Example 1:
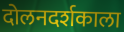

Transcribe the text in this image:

दोलनदर्शकाला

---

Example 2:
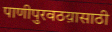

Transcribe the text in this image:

पाणीपुरवठय़ासाठी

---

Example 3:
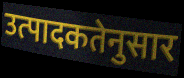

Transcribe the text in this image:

उत्पादकतेनुसार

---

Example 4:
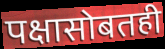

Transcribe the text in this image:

पक्षासोबतही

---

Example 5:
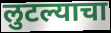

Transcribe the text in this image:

लुटल्याचा